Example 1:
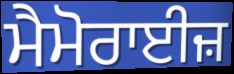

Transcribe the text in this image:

ਮੈਮੋਰਾਈਜ਼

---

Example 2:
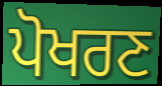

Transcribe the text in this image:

ਪੋਖਰਣ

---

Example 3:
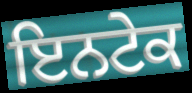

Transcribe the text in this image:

ਇਨਟੇਕ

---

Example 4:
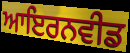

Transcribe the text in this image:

ਆਇਰਨਵੀਡ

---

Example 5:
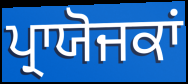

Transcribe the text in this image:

ਪ੍ਰਾਯੋਜਕਾਂ